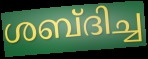
ശബ്ദിച്ച